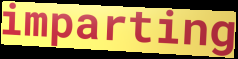
imparting